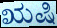
ಋಷಿ